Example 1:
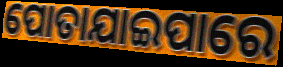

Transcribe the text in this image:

ପୋତାଯାଇପାରେ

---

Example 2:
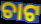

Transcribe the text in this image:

ଚାଟ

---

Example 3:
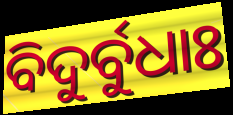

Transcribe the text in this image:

ବିଦୁର୍ବୁଧାଃ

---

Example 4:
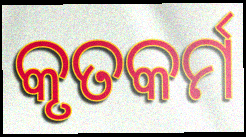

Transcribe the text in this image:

କୃତକର୍ମ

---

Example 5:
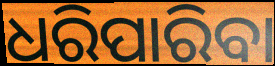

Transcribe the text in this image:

ଧରିପାରିବା